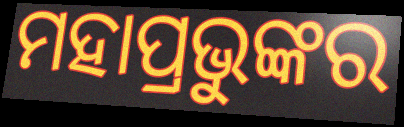
ମହାପ୍ରଭୁଙ୍କର